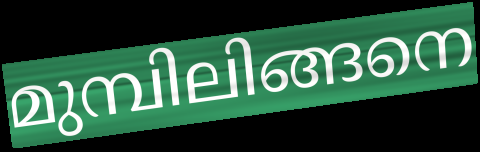
മുമ്പിലിങ്ങനെ